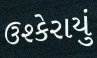
ઉશ્કેરાયું